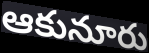
ఆకునూరు